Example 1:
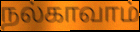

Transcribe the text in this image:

நல்காவாம்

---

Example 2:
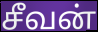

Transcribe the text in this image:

சீவன்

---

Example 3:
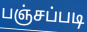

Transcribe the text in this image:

பஞ்சப்படி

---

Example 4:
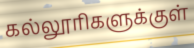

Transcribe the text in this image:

கல்லூரிகளுக்குள்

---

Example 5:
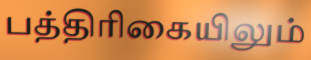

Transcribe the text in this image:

பத்திரிகையிலும்